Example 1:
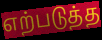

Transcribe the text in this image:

எற்படுத்த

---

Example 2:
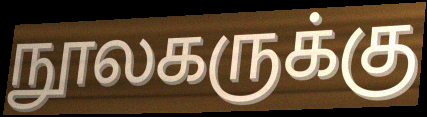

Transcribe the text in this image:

நூலகருக்கு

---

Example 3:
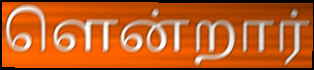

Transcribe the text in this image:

ளென்றார்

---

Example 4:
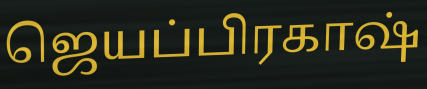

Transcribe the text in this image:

ஜெயப்பிரகாஷ்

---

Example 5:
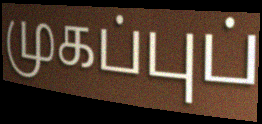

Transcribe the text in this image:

முகப்புப்